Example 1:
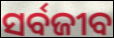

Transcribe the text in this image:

ସର୍ବଜୀବ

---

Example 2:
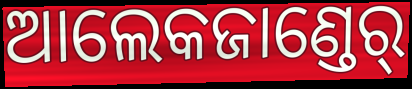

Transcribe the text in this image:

ଆଲେକଜାଣ୍ଡେର୍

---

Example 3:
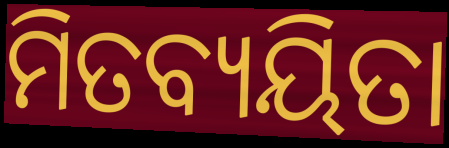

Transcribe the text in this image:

ମିତବ୍ୟୟିତା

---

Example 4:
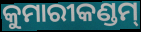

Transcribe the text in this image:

କୁମାରୀକଣ୍ଡମ୍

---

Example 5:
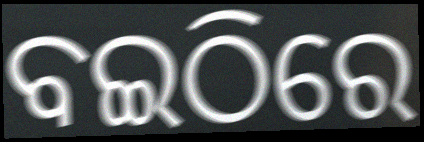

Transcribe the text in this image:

ବଇଠିରେ